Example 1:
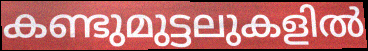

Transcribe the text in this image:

കണ്ടുമുട്ടലുകളിൽ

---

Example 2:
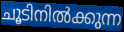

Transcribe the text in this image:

ചൂടിനിൽക്കുന്ന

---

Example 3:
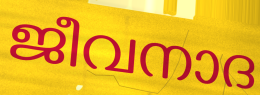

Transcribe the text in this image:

ജീവനാദ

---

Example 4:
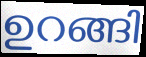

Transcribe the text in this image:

ഉറങ്ങി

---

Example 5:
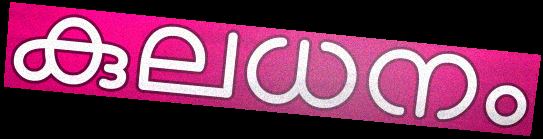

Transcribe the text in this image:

കുലധനം